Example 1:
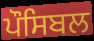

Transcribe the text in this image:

ਪੌਸਿਬਲ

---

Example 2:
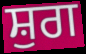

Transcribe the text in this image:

ਸ਼ੁਗ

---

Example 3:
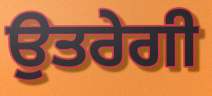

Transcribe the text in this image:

ਉਤਰੇਗੀ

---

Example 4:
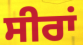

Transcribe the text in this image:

ਸੀਰਾਂ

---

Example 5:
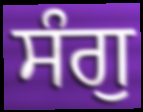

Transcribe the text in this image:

ਸੰਗੁ